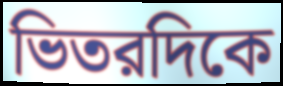
ভিতরদিকে